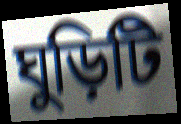
ঘুড়িটি